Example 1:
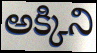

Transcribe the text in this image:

అక్కిని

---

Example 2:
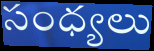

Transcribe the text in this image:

సంధ్యలు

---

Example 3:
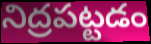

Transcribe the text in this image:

నిద్రపట్టడం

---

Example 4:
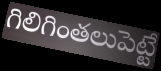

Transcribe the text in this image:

గిలిగింతలుపెట్టే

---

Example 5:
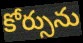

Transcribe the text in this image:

కోర్సును